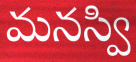
మనస్వి